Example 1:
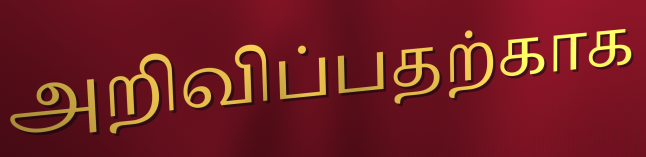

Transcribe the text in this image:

அறிவிப்பதற்காக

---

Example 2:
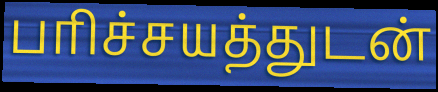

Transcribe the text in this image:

பரிச்சயத்துடன்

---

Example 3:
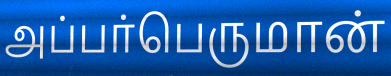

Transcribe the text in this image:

அப்பர்பெருமான்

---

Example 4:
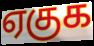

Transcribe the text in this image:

ஏகுக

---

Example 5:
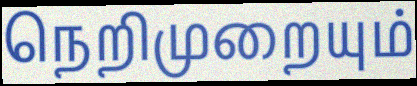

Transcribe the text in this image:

நெறிமுறையும்